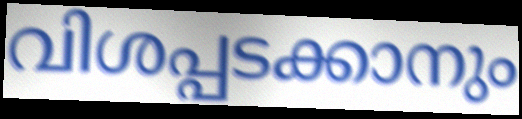
വിശപ്പടക്കാനും